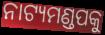
ନାଟ୍ୟମଣ୍ଡପକୁ